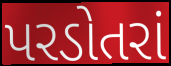
પરડોતરાં